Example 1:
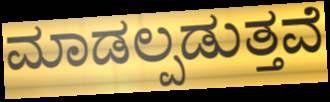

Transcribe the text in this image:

ಮಾಡಲ್ಪಡುತ್ತವೆ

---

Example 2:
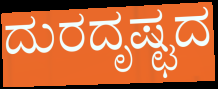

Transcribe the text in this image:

ದುರದೃಷ್ಟದ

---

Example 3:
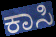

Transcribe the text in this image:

ಕಾಸಿ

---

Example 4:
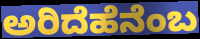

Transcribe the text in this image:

ಅರಿದೆಹೆನೆಂಬ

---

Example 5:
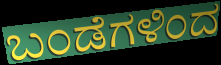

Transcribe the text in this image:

ಬಂಡೆಗಳಿಂದ